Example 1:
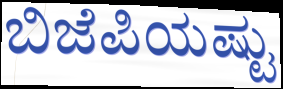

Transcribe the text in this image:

ಬಿಜೆಪಿಯಷ್ಟು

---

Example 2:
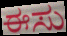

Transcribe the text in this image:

ಈಸು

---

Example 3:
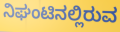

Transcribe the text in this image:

ನಿಘಂಟಿನಲ್ಲಿರುವ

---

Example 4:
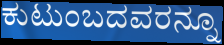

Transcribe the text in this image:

ಕುಟುಂಬದವರನ್ನೂ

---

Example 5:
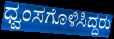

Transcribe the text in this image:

ಧ್ವಂಸಗೊಳಿಸಿದ್ದರು